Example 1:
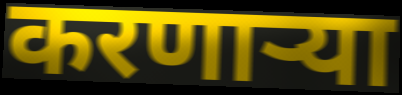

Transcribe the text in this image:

करणार्‍या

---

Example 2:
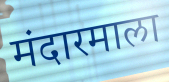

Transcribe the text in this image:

मंदारमाला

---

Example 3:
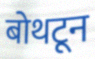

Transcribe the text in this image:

बोथटून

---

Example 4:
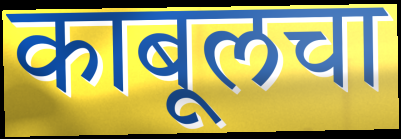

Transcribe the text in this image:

काबूलचा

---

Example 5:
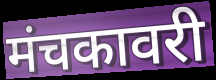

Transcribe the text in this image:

मंचकावरी